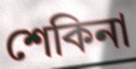
শেকিনা